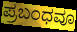
ಪ್ರಬಂಧವೂ